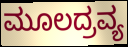
ಮೂಲದ್ರವ್ಯ